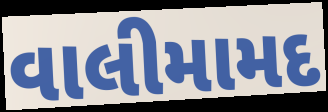
વાલીમામદ